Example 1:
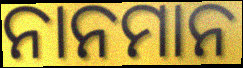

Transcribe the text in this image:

ନାନମାନ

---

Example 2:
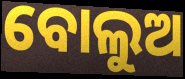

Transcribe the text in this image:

ବୋଲୁଅ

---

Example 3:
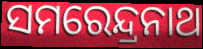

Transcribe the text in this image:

ସମରେନ୍ଦ୍ରନାଥ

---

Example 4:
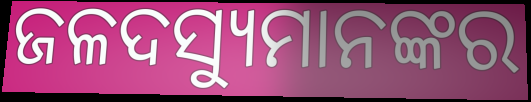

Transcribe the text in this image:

ଜଳଦସ୍ୟୁମାନଙ୍କର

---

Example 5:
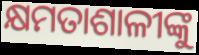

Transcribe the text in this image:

କ୍ଷମତାଶାଳୀଙ୍କୁ